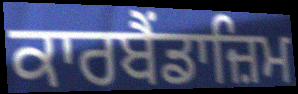
ਕਾਰਬੈਂਡਾਜ਼ਿਮ